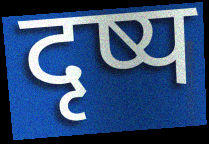
दृष्य